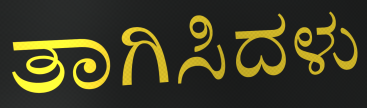
ತಾಗಿಸಿದಳು